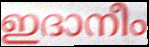
ഇദാനീം